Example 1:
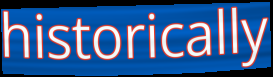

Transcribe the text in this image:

historically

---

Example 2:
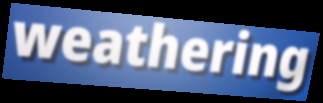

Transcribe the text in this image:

weathering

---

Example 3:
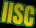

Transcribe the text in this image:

IISC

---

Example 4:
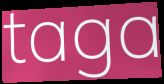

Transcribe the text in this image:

taga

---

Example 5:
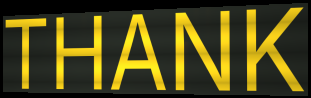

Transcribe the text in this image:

THANK